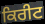
ਕਿਰੀਟ